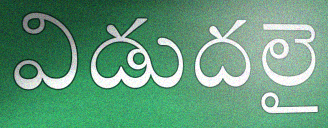
విడుదలై